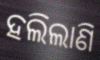
ହଲିଲାଣି